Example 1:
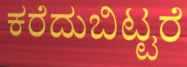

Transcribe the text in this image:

ಕರೆದುಬಿಟ್ಟರೆ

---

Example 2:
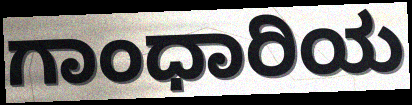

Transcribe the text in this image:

ಗಾಂಧಾರಿಯ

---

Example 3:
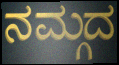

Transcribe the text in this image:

ನಮ್ಗದ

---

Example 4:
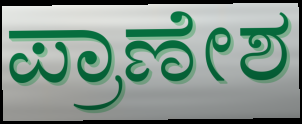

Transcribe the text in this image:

ಪ್ರಾಣೇಶ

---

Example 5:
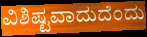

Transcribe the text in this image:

ವಿಶಿಷ್ಟವಾದುದೆಂದು